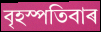
বৃহস্পতিবাৰ